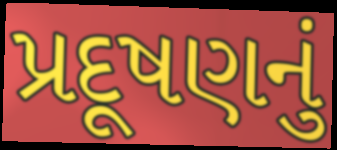
પ્રદૂષણનું